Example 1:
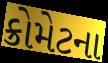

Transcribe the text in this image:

ક્રોમેટના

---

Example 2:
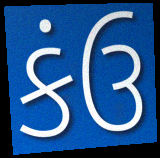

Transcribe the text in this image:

કંઉ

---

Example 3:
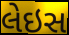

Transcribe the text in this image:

લેઇસ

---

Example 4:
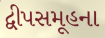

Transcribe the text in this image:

દ્વીપસમૂહના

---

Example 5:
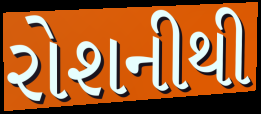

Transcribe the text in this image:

રોશનીથી